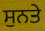
ਸੁਨਤੇ